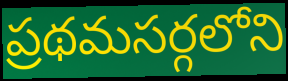
ప్రథమసర్గలోని